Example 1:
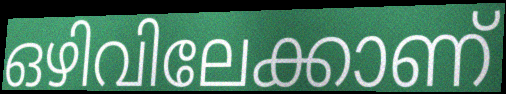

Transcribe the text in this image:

ഒഴിവിലേക്കാണ്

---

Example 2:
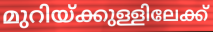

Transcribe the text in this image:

മുറിയ്ക്കുള്ളിലേക്ക്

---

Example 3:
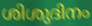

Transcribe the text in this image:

ശിശുദിനം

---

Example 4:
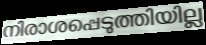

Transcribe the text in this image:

നിരാശപ്പെടുത്തിയില്ല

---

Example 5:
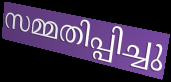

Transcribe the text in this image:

സമ്മതിപ്പിച്ചു